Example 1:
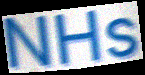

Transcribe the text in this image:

NHs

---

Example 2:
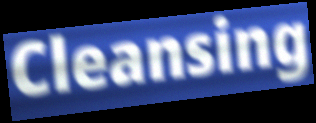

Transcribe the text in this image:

Cleansing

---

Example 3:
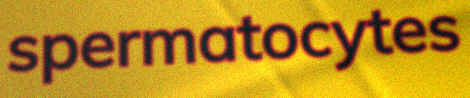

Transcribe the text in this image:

spermatocytes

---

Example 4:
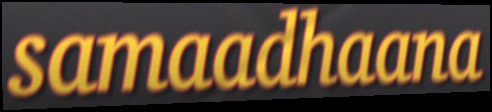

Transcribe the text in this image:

samaadhaana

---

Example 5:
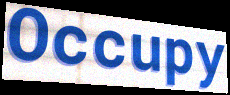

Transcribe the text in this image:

Occupy